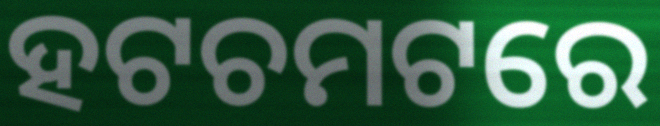
ହଟଚମଟରେ